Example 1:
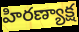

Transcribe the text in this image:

హిరణ్యాక్ష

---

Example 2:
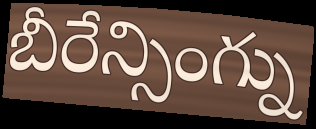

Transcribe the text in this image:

బీరేన్సింగ్ను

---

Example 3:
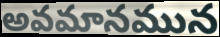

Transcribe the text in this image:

అవమానమున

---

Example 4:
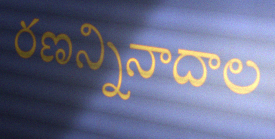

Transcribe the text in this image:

రణన్నినాదాల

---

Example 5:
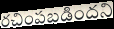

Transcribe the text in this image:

రచింపబడిందని